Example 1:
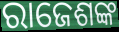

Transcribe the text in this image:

ରାଜେଶଙ୍କ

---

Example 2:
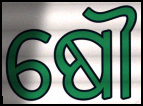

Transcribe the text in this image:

ଷୌ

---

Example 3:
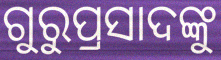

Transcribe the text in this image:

ଗୁରୁପ୍ରସାଦଙ୍କୁ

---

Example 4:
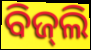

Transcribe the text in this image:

ବିଜ୍‍ଲି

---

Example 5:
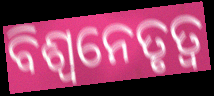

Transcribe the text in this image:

ବିଶ୍ୱନେତୃତ୍ୱ